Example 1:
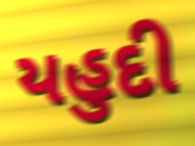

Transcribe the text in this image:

યહુદી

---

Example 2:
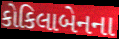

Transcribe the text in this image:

કોકિલાબેનના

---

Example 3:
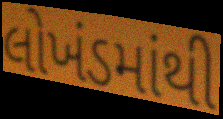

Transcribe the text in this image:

લોખંડમાંથી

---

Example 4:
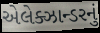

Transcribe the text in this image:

એલેક્ઝાન્ડરનું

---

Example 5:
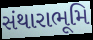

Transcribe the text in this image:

સંથારાભૂમિ